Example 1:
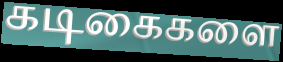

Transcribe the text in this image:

கடிகைகளை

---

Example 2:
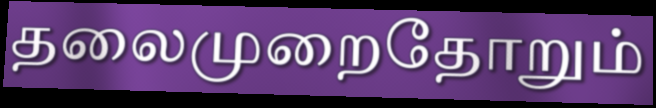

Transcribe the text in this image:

தலைமுறைதோறும்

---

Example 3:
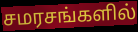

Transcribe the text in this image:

சமரசங்களில்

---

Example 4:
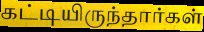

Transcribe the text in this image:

கட்டியிருந்தார்கள்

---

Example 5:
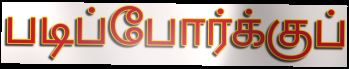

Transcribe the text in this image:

படிப்போர்க்குப்